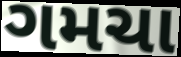
ગમચા